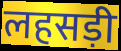
लहसड़ी